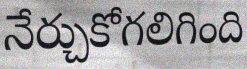
నేర్చుకోగలిగింది